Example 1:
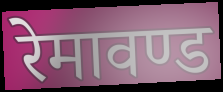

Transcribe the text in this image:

रेमावण्ड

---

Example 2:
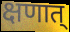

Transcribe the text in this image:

क्षणात्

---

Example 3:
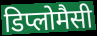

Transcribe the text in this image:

डिप्लोमैसी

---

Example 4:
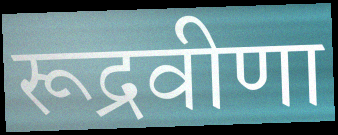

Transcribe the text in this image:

रूद्रवीणा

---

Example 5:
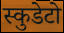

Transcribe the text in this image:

स्कुडेटो